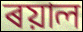
ৰয়াল